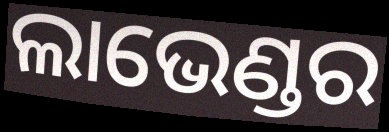
ଲାଭେଣ୍ଡର